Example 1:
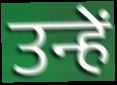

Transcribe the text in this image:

उन्‍हें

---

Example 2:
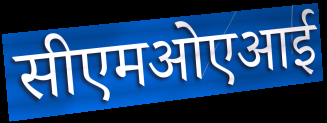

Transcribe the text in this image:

सीएमओएआई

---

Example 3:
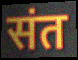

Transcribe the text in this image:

संत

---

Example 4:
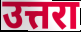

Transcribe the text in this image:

उत्तरा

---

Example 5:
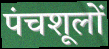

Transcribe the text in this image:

पंचशूलों